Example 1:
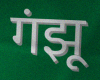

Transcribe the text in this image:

गंझू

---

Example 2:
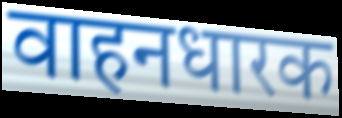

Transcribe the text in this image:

वाहनधारक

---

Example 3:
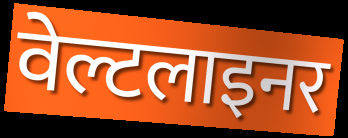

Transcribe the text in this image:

वेल्टलाइनर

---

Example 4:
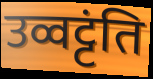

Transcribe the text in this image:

उव्वट्टंति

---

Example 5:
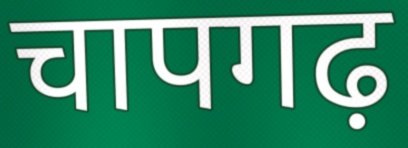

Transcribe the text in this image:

चापगढ़